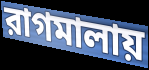
রাগমালায়